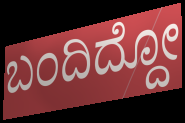
ಬಂದಿದ್ದೋ